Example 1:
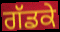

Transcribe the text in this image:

ਗੱਡਕੇ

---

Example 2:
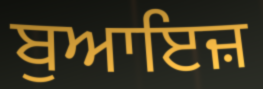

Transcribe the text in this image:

ਬੁਆਇਜ਼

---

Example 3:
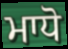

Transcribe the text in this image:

ਮਾਧੋ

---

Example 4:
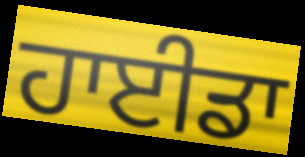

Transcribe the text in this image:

ਹਾਈਡਾ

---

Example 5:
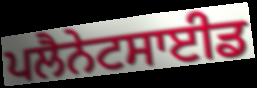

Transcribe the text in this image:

ਪਲੈਨੇਟਸਾਈਡ